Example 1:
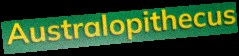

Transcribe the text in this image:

Australopithecus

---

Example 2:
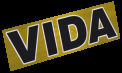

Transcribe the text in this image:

VIDA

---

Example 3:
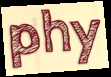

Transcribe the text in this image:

phy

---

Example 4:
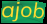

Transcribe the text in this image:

ajob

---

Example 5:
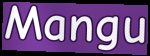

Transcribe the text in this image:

Mangu